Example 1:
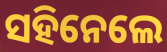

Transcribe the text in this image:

ସହିନେଲେ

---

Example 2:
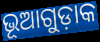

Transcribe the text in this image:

ଭୂଆଗୁଡ଼ାକ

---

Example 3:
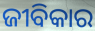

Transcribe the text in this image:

ଜୀବିକାର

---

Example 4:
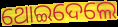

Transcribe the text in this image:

ଥୋଇଦେଲେ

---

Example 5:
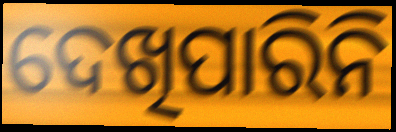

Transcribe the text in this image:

ଦେଖିପାରିନି